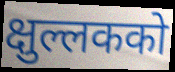
क्षुल्लकको